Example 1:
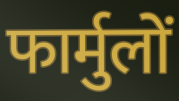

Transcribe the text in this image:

फार्मुलों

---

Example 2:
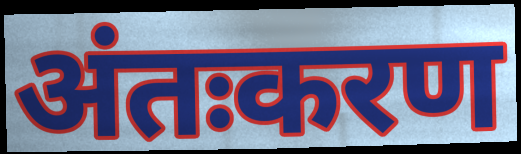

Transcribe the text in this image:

अंतःकरण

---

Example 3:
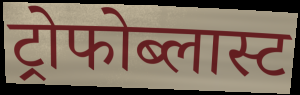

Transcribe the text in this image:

ट्रोफोब्लास्ट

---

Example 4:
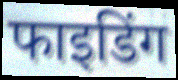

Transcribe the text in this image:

फाइडिंग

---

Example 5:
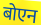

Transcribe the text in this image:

बोएन